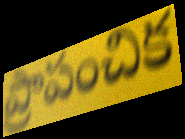
ప్రాపంచిక